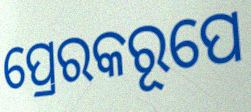
ପ୍ରେରକରୂପେ